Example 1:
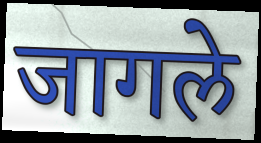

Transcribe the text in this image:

जागले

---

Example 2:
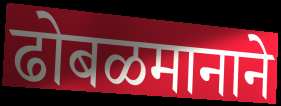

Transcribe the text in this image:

ढोबळमानाने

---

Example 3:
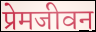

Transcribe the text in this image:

प्रेमजीवन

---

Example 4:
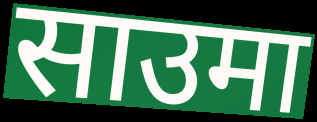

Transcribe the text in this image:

साउमा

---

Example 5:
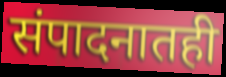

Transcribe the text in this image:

संपादनातही